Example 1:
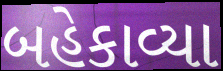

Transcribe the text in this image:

બહેકાવ્યા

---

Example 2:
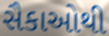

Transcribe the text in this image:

સૈકાઓથી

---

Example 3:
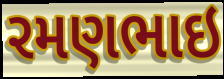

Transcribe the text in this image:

રમણભાઇ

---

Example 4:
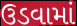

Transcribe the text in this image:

ઉડવામાં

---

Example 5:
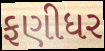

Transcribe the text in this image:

ફણીધર